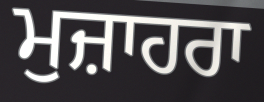
ਮੁਜ਼ਾਹਰਾ